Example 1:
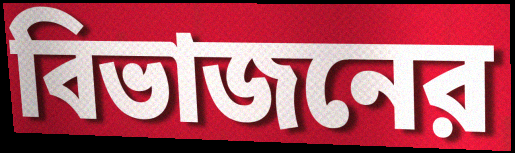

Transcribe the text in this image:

বিভাজনের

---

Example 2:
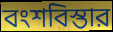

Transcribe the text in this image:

বংশবিস্তার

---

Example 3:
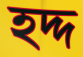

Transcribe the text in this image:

হদ্দ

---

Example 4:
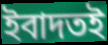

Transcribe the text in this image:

ইবাদতই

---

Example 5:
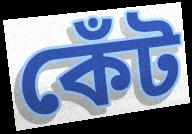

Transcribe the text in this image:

কেঁট